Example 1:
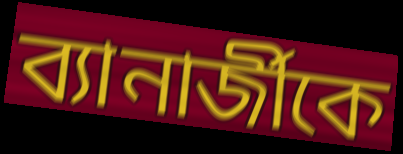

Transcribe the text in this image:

ব্যানার্জীকে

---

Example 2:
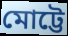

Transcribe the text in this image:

মোট্টে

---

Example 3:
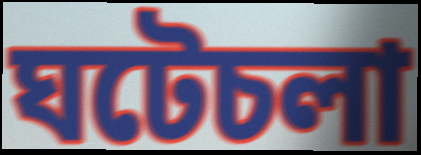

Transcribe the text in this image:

ঘটেচলা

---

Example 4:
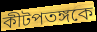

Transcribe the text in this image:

কীটপতঙ্গকে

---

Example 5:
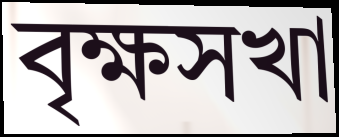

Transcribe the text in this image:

বৃক্ষসখা